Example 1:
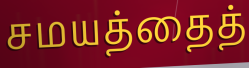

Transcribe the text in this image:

சமயத்தைத்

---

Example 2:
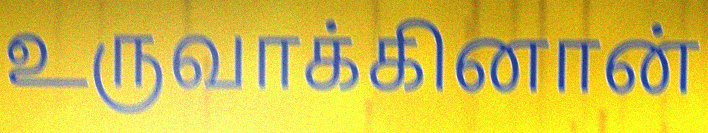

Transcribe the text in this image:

உருவாக்கினான்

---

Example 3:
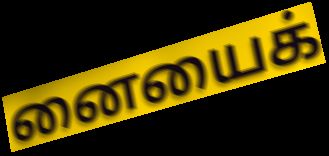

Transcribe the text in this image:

னையைக்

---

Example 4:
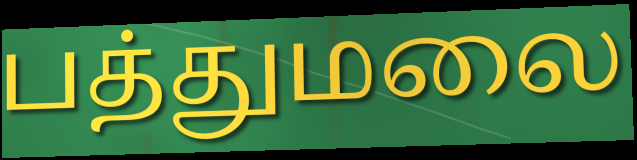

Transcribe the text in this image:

பத்துமலை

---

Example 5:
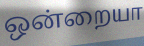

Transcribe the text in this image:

ஒன்றையா